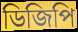
ডিজিপি